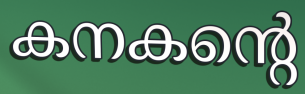
കനകന്റെ